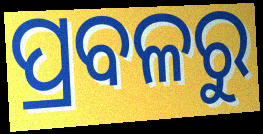
ପ୍ରବଳରୁ